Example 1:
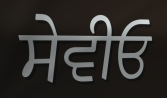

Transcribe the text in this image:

ਸੇਵੀਓ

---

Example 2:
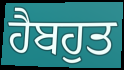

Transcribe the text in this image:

ਹੈਬਹੁਤ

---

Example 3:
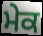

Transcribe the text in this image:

ਮੇਕ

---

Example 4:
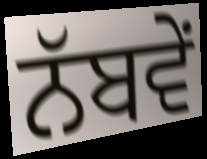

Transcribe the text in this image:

ਨੱਬਵੇਂ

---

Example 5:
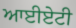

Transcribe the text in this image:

ਆਈਏਟੀ